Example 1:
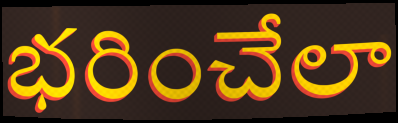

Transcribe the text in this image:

భరించేలా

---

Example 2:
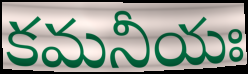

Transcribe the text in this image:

కమనీయః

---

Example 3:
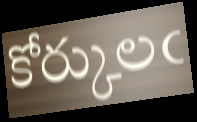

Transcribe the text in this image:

కోర్కులఁ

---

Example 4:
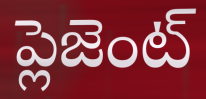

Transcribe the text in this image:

ప్లెజెంట్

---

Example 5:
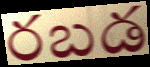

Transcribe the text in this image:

రబడ